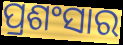
ପ୍ରଶଂସାର